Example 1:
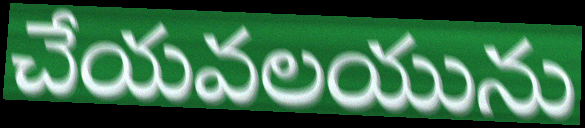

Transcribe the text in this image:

చేయవలయును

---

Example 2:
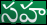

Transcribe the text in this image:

సహ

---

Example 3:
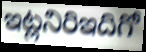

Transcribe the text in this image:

ఇట్లనిరిఇదిగో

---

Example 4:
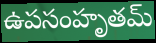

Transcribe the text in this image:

ఉపసంహృతమ్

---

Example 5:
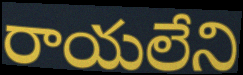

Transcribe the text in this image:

రాయలేని